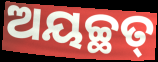
ଅୟଚ୍ଛତ୍